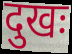
दुखः